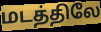
மடத்திலே